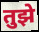
तुझे